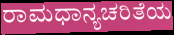
ರಾಮಧಾನ್ಯಚರಿತೆಯ